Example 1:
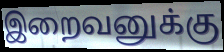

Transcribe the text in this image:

இறைவனுக்கு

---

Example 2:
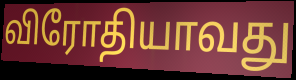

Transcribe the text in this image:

விரோதியாவது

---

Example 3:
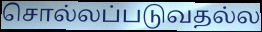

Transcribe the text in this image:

சொல்லப்படுவதல்ல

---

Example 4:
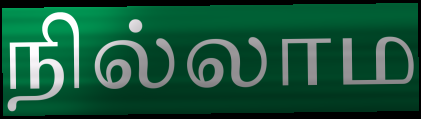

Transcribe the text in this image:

நில்லாம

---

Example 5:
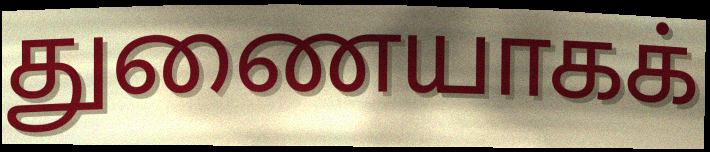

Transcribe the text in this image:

துணையாகக்